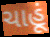
ચાહૂં